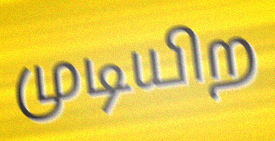
முடியிற